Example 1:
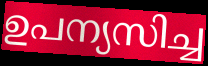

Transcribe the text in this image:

ഉപന്യസിച്ച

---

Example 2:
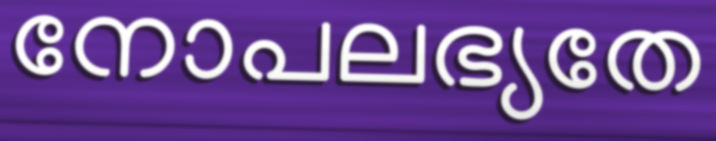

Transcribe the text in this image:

നോപലഭ്യതേ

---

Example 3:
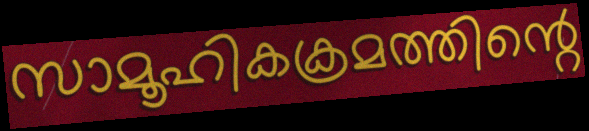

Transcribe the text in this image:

സാമൂഹികക്രമത്തിന്റെ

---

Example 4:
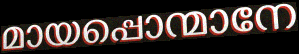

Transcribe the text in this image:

മായപ്പൊന്മാനേ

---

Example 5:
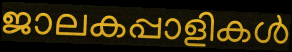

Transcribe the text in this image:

ജാലകപ്പാളികൾ